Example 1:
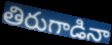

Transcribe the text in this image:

తిరుగాడినా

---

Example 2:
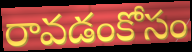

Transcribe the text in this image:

రావడంకోసం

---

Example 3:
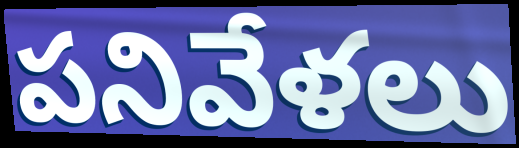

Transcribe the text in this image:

పనివేళలు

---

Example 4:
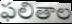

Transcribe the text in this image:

ఫలితాల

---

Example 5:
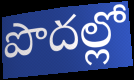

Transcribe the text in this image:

పొదల్లో